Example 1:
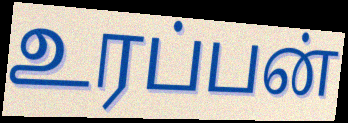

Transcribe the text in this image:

உரப்பன்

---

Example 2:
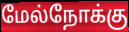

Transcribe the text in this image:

மேல்நோக்கு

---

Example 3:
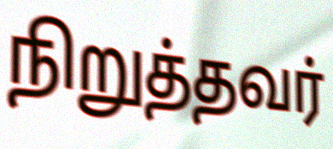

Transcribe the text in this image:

நிறுத்தவர்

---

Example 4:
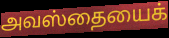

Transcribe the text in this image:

அவஸ்தையைக்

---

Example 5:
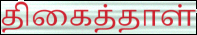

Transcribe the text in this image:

திகைத்தாள்